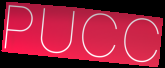
PUCC